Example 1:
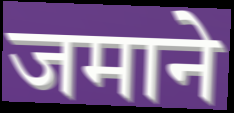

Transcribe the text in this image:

जमाने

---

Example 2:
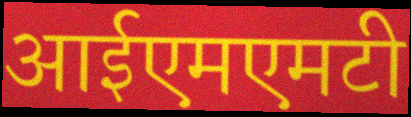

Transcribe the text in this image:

आईएमएमटी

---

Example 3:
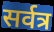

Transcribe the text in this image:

सर्वत्र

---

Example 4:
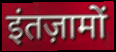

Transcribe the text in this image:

इंतज़ामों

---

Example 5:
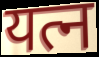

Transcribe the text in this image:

यत्न